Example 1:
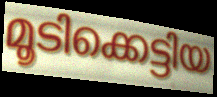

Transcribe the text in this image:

മൂടിക്കെട്ടിയ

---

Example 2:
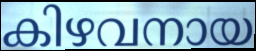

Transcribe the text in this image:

കിഴവനായ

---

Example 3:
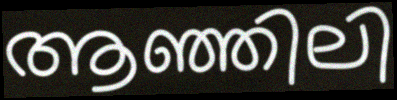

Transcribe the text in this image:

ആഞ്ഞിലി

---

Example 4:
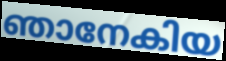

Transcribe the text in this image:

ഞാനേകിയ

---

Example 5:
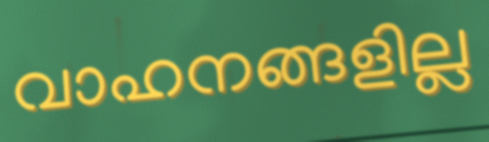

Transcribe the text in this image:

വാഹനങ്ങളില്ല